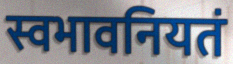
स्वभावनियतं